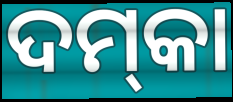
ଦମ୍‌କା